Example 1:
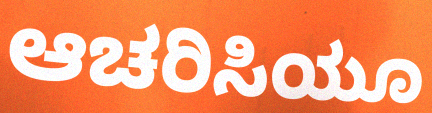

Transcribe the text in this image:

ಆಚರಿಸಿಯೂ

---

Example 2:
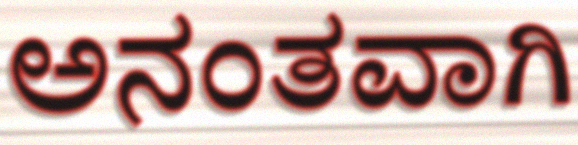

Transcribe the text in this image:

ಅನಂತವಾಗಿ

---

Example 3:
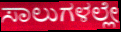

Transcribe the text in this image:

ಸಾಲುಗಳಲ್ಲೇ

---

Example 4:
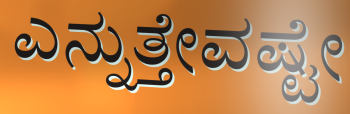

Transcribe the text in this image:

ಎನ್ನುತ್ತೇವಷ್ಟೇ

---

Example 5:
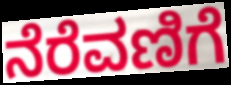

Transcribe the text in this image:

ನೆರೆವಣಿಗೆ